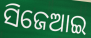
ସିଜେଆଇ